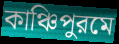
কাঞ্চিপুরমে